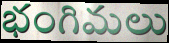
భంగిమలు